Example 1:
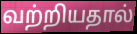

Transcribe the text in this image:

வற்றியதால்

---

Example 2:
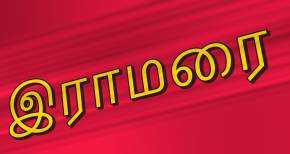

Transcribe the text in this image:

இராமரை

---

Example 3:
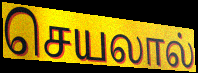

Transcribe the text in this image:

செயலால்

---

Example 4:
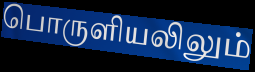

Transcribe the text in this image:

பொருளியலிலும்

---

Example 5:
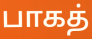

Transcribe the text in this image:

பாகத்